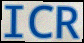
ICR